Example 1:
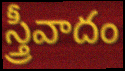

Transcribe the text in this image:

స్త్రీవాదం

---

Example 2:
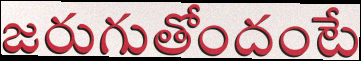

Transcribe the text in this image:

జరుగుతోందంటే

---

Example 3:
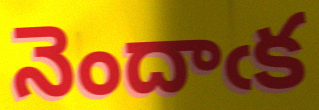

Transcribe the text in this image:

నెందాఁక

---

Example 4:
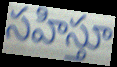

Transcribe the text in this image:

సహిస్తూ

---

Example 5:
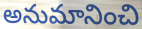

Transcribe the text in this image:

అనుమానించి